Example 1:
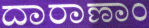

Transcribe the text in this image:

ದಾರಾಣಾಂ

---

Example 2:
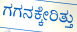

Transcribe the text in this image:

ಗಗನಕ್ಕೇರಿತ್ತು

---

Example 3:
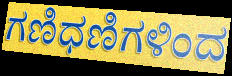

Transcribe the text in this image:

ಗಣಿಧಣಿಗಳಿಂದ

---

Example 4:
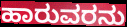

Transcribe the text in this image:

ಹಾರುವರನು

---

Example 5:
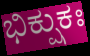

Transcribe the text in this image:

ಭಿಕ್ಷುಕಃ